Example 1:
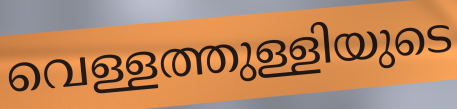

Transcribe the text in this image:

വെള്ളത്തുള്ളിയുടെ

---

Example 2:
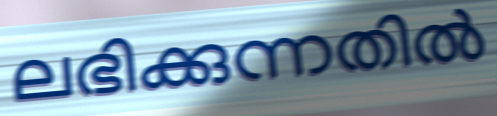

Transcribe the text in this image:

ലഭിക്കുന്നതിൽ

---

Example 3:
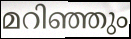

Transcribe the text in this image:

മറിഞ്ഞും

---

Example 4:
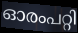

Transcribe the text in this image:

ഓരംപറ്റി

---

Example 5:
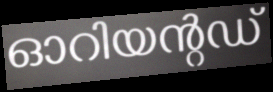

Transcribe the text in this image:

ഓറിയന്റഡ്